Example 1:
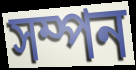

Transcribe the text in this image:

সম্পন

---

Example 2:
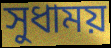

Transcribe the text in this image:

সুধাময়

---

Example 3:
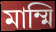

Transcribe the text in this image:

মাম্মি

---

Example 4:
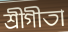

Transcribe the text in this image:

শ্রীগীতা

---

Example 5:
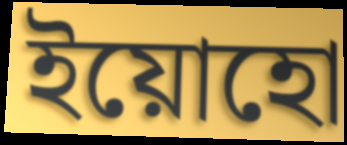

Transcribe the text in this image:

ইয়োহো